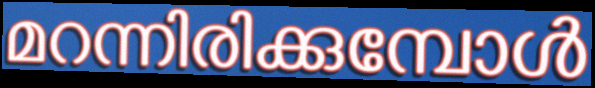
മറന്നിരിക്കുമ്പോൾ